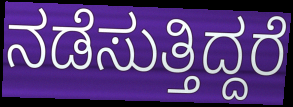
ನಡೆಸುತ್ತಿದ್ದರೆ